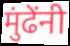
मुंढेंनी